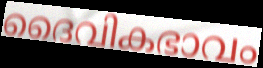
ദൈവികഭാവം